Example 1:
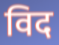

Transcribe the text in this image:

विद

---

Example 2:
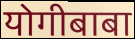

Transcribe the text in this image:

योगीबाबा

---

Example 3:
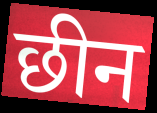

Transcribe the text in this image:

छीन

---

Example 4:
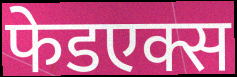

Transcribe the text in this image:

फेडएक्स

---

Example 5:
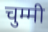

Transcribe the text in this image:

चुम्मी